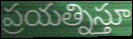
ప్రయత్నిస్తూ